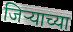
जिऱ्याच्या